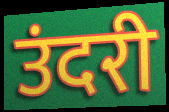
उंदरी